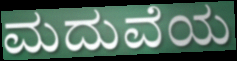
ಮದುವೆಯ